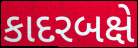
કાદરબક્ષે